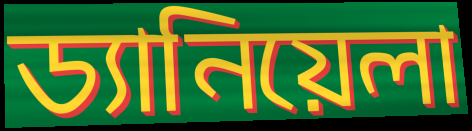
ড্যানিয়েলা